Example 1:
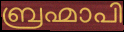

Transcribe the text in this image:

ബ്രഹ്മാപി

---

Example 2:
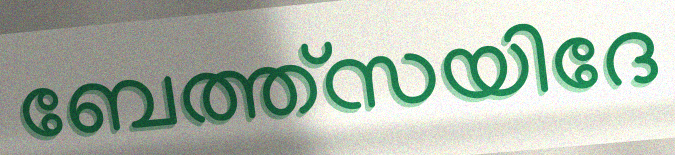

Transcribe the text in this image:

ബേത്ത്സയിദേ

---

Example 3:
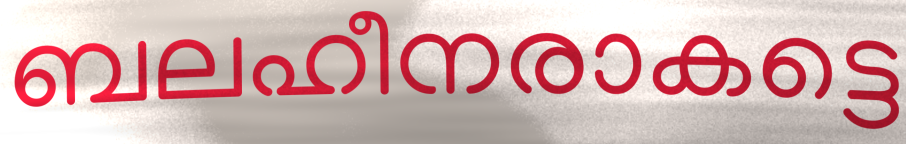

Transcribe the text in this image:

ബലഹീനരാകട്ടെ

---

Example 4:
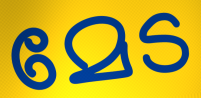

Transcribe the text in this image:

മേട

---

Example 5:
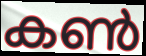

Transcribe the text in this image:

കൺ